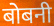
बोबनी